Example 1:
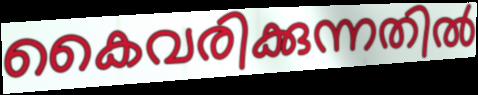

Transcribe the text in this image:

കൈവരിക്കുന്നതിൽ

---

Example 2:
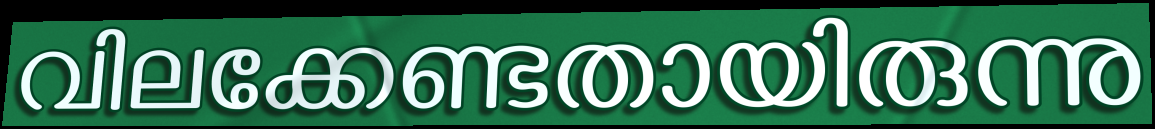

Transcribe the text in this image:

വിലക്കേണ്ടതായിരുന്നു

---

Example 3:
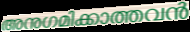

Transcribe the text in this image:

അനുഗമിക്കാത്തവൻ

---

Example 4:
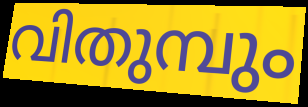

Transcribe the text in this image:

വിതുമ്പും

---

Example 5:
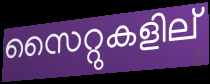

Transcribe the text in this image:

സൈറ്റുകളില്